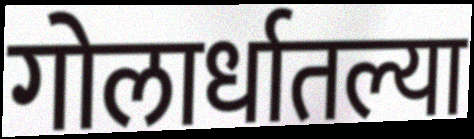
गोलार्धातल्या